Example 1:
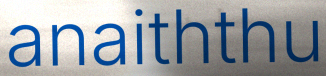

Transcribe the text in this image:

anaiththu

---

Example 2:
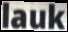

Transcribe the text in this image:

lauk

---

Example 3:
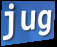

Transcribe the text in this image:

jug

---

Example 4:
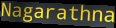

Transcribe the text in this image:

Nagarathna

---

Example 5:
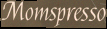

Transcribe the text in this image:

Momspresso